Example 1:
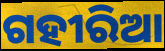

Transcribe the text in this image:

ଗହୀରିଆ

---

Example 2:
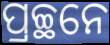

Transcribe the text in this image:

ପ୍ରଚ୍ଛନେ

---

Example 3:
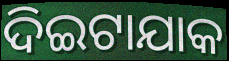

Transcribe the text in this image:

ଦିଇଟାଯାକ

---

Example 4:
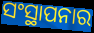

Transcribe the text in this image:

ସଂସ୍ଥାପନାର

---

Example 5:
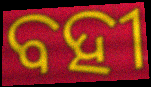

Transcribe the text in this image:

ବହୀ